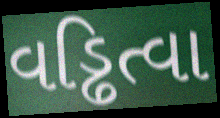
વડ્ઢિત્વા